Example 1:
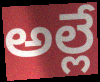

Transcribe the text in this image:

అల్లే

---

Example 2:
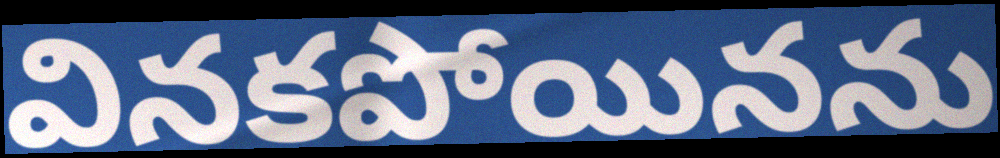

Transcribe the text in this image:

వినకపోయినను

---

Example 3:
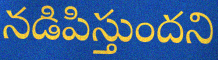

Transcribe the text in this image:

నడిపిస్తుందని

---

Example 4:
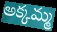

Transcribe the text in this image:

అక్కమ్మ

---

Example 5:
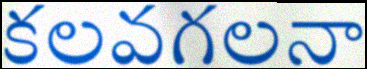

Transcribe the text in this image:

కలవగలనా